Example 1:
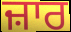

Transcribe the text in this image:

ਜ਼ਾਰ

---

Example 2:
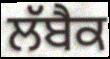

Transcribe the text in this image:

ਲੱਬੈਕ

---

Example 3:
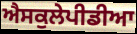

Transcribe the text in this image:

ਐਸਕੁਲੇਪੀਡੀਆ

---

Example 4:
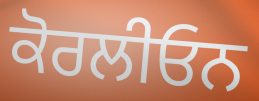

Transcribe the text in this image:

ਕੋਰਲੀਓਨ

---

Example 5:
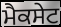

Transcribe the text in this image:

ਮੈਕਸੇਟ